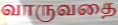
வாருவதை